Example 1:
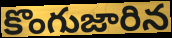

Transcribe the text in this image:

కొంగుజారిన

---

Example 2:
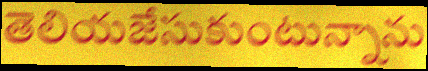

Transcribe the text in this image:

తెలియజేసుకుంటున్నాను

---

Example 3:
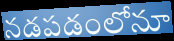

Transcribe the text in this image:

నడపడంలోనూ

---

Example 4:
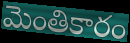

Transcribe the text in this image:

మెంతికారం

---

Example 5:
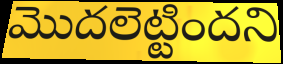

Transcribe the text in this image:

మొదలెట్టిందని